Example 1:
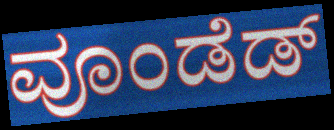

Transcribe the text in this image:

ವೂಂಡೆಡ್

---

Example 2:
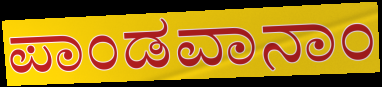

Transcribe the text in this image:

ಪಾಂಡವಾನಾಂ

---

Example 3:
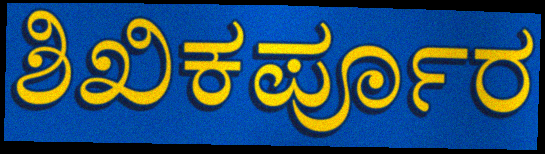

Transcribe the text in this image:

ಶಿಖಿಕರ್ಪೂರ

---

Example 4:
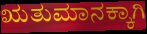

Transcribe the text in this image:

ಋತುಮಾನಕ್ಕಾಗಿ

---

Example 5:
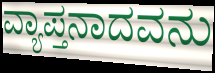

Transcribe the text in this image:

ವ್ಯಾಪ್ತನಾದವನು